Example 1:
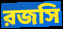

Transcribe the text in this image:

রজসি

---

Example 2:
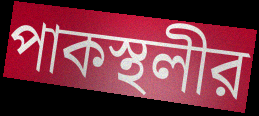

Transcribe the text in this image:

পাকস্থলীর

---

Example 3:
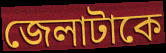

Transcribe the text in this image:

জেলাটাকে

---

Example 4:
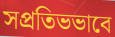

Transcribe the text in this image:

সপ্রতিভভাবে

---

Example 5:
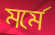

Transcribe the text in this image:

মর্মে